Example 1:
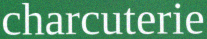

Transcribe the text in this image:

charcuterie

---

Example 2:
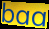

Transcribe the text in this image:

baa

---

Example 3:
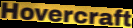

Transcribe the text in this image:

Hovercraft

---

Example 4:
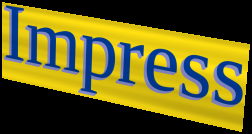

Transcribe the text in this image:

Impress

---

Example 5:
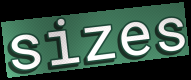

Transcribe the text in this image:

sizes